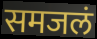
समजलं